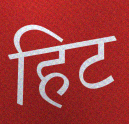
हिट